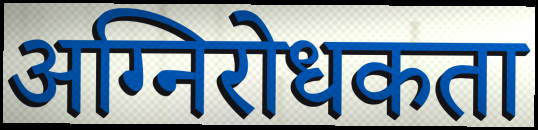
अग्निरोधकता